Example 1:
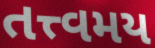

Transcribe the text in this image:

તત્ત્વમય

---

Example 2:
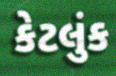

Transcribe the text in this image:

કેટલુંક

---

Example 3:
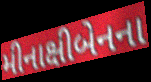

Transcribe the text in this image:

મીનાક્ષીબેનના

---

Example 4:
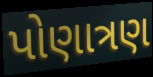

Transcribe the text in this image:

પોણાત્રણ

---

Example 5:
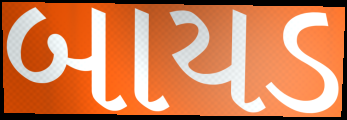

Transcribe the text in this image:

બાયડ